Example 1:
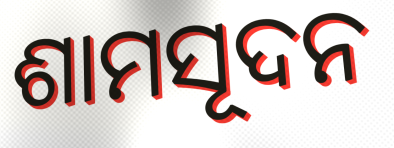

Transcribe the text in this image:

ଶାମସୂଦନ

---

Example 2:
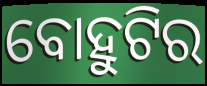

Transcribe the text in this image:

ବୋହୁଟିର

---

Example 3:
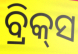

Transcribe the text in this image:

ବ୍ରିକ୍‌ସ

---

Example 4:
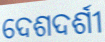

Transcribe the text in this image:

ଦେଶଦର୍ଶୀ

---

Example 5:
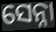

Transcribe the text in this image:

ସେନ୍ନା